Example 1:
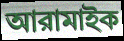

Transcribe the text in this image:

আরামাইক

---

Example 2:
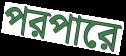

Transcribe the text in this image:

পরপারে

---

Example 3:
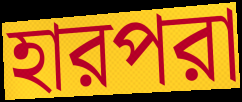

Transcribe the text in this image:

হারপরা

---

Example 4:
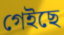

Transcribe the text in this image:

গেইছে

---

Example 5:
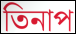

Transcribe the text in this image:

তিনাপ